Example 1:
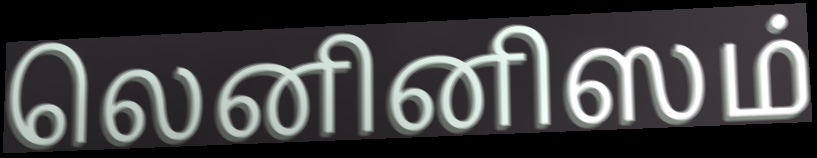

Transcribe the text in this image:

லெனினிஸம்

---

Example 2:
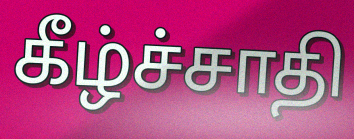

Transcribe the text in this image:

கீழ்ச்சாதி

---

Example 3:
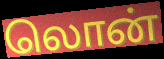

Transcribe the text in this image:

லொன்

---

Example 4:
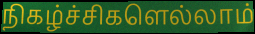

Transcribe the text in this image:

நிகழ்ச்சிகளெல்லாம்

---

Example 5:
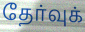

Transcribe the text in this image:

தேர்வுக்